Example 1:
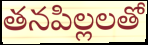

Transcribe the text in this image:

తనపిల్లలతో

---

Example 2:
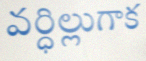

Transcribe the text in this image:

వర్ధిల్లుగాక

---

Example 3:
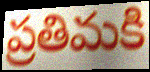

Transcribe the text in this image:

ప్రతిమకి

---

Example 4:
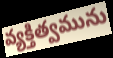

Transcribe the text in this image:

వ్యక్తిత్వమును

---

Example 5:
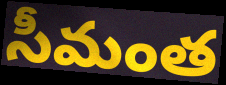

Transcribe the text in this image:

సీమంత